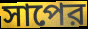
সাপের